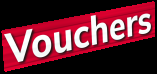
Vouchers